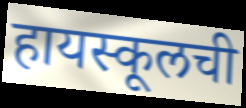
हायस्कूलची